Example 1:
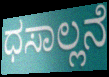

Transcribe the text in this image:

ಧಸಾಲ್ಲನೆ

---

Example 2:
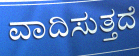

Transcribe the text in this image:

ವಾದಿಸುತ್ತದೆ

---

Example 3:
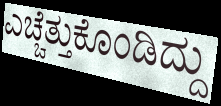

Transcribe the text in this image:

ಎಚ್ಚೆತ್ತುಕೊಂಡಿದ್ದು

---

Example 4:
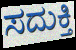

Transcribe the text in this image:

ಸದುಕ್ತಿ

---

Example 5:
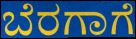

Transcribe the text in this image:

ಬೆರಗಾಗೆ